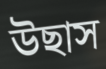
উছাস